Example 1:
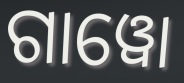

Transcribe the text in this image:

ଗାୱୋ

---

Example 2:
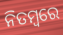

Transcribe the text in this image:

ନିତମ୍ୱରେ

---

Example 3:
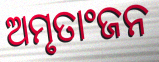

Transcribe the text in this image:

ଅମୃତାଂଜନ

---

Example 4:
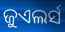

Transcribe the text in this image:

ଜୁଏଲର୍ସ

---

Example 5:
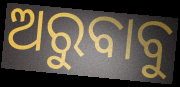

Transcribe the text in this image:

ଅରୁବାବୁ